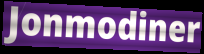
Jonmodiner